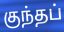
குந்தப்